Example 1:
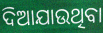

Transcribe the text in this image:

ଦିଆଯାଉଥିବା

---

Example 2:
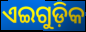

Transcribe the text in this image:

ଏଇଗୁଡ଼ିକ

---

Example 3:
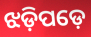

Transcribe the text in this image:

ଝଡ଼ିପଡ଼େ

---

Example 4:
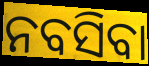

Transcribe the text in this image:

ନବସିବା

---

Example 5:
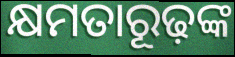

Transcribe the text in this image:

କ୍ଷମତାରୂଢ଼ଙ୍କ